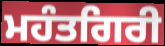
ਮਹੰਤਗਿਰੀ